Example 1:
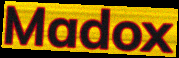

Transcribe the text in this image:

Madox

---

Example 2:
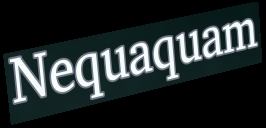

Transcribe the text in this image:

Nequaquam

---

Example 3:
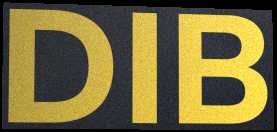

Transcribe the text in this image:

DIB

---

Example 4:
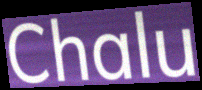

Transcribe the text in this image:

Chalu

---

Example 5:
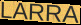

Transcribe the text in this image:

LARRA